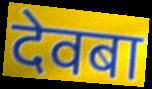
देवबा